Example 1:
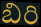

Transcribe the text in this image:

బిరి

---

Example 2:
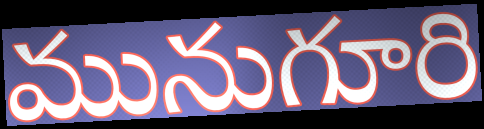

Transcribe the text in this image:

మునుగూరి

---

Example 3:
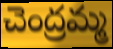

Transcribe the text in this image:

చెంద్రమ్మ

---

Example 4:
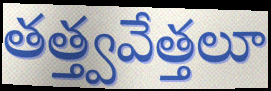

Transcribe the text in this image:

తత్త్వవేత్తలూ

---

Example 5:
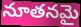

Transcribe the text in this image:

నూతనమై